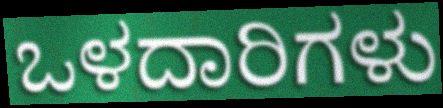
ಒಳದಾರಿಗಳು